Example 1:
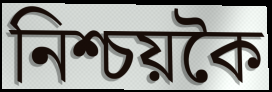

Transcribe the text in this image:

নিশ্চয়কৈ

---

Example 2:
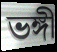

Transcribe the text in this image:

ভঙ্গী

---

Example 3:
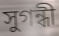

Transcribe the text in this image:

সুগন্ধী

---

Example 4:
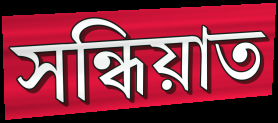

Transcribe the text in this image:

সন্ধিয়াত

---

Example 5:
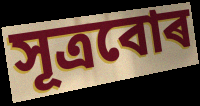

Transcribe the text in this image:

সূত্ৰবোৰ